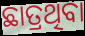
ଛାତ୍ରଥିବା